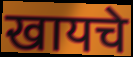
खायचे